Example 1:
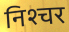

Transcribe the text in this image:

निश्चर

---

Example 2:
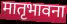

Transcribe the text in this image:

मातृभावना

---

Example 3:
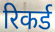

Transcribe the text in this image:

रिकर्ड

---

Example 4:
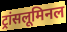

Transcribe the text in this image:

ट्रांसलूमिनल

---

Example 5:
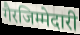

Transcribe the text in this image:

गैरजिम्मेदारी